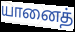
யானைத்